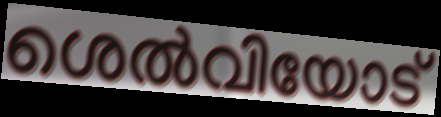
ശെൽവിയോട്